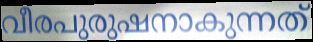
വീരപുരുഷനാകുന്നത്